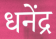
धनेंद्र